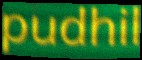
pudhil